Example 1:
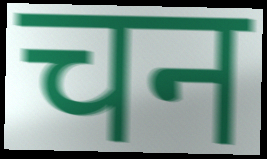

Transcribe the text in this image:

चन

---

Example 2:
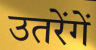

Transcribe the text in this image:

उतरेंगें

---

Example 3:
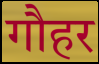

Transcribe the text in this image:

गौहर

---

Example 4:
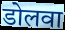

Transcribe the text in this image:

डोलवा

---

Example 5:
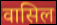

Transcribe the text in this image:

वासिल